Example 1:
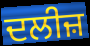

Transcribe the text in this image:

ਦਲੀਜ਼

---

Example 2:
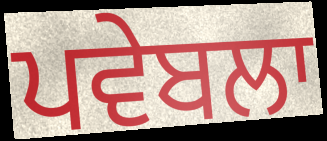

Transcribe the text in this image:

ਪਵੇਬਲਾ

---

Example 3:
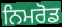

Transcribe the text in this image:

ਨਿਮਰੋਡ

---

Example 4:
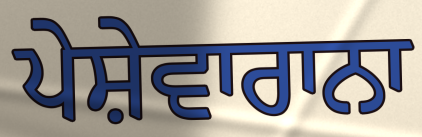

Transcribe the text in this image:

ਪੇਸ਼ੇਵਾਰਾਨਾ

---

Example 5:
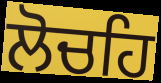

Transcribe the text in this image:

ਲੋਚਹਿ